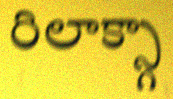
రిలాక్స్గా